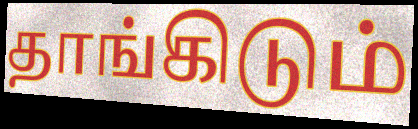
தாங்கிடும்